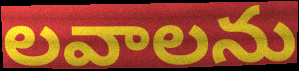
లవాలను